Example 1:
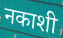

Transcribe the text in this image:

नकाशी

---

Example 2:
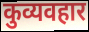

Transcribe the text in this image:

कुव्यवहार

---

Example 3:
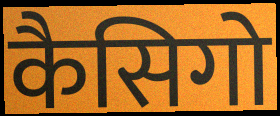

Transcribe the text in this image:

कैसिगो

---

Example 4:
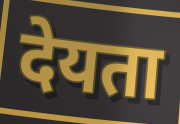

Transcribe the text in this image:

देयता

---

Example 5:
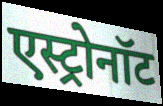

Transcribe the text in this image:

एस्ट्रोनॉट